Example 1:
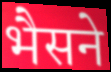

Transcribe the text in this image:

भैसने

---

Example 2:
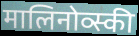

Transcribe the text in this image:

मालिनोव्स्की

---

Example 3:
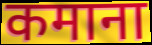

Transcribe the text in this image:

कमाना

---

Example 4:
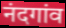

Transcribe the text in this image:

नंदगांव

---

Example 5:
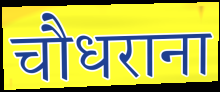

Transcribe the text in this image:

चौधराना